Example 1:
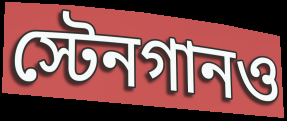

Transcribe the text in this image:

স্টেনগানও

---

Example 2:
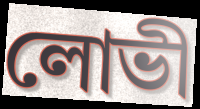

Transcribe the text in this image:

লোভী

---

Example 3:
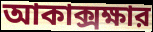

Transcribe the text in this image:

আকাক্সক্ষার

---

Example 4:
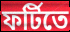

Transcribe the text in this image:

ফর্টিতে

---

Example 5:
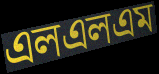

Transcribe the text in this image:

এলএলএম